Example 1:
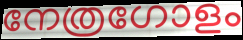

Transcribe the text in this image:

നേത്രഗോളം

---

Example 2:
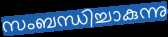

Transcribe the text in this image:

സംബന്ധിച്ചാകുന്നു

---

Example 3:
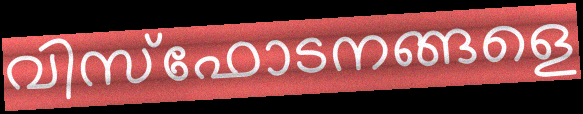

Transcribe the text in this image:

വിസ്ഫോടനങ്ങളെ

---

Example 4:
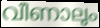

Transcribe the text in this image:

വീണാലും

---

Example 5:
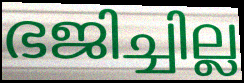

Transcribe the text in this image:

ഭജിച്ചില്ല